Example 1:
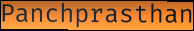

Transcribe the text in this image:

Panchprasthan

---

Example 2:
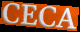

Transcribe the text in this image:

CECA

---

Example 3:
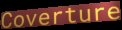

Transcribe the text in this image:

Coverture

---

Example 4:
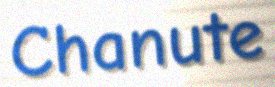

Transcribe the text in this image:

Chanute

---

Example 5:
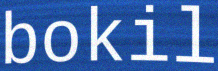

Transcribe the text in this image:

bokil